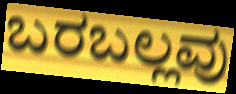
ಬರಬಲ್ಲವು